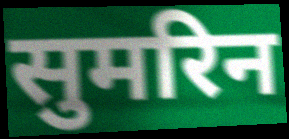
सुमरिन